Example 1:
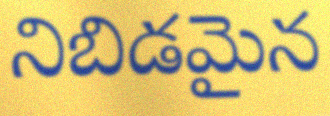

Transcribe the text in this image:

నిబిడమైన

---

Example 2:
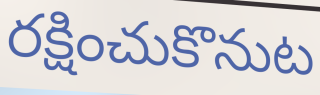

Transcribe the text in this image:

రక్షించుకొనుట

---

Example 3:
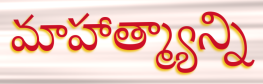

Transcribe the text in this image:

మాహాత్మ్యాన్ని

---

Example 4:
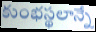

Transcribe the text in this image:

కుంభస్థలాన్నే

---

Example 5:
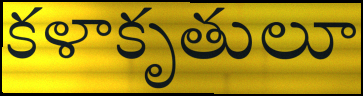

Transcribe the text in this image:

కళాకృతులూ